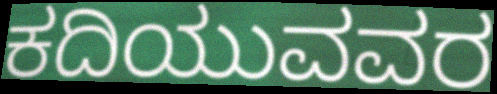
ಕದಿಯುವವರ